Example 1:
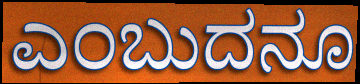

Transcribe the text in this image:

ಎಂಬುದನೂ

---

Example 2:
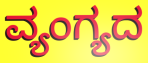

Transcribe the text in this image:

ವ್ಯಂಗ್ಯದ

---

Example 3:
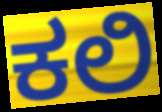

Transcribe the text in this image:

ಕಲಿ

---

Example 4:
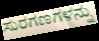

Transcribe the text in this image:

ಸುರಗಣಗಳನ್ನು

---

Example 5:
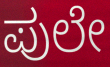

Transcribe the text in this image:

ಪುಲೇ